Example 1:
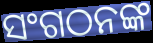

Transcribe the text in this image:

ସଂଗଠନଙ୍କ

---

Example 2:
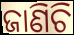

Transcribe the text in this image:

ଜାଣିଚି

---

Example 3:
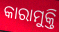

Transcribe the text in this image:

କାରାମୁକ୍ତି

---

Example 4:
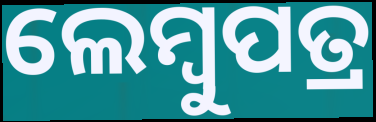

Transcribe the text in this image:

ଲେମ୍ବୁପତ୍ର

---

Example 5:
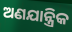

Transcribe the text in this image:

ଅଣଯାନ୍ତ୍ରିକ